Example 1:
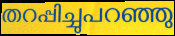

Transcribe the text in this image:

തറപ്പിച്ചുപറഞ്ഞു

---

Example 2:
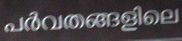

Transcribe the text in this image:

പർവതങ്ങളിലെ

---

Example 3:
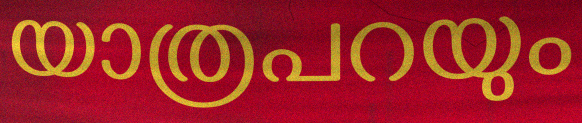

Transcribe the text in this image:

യാത്രപറയും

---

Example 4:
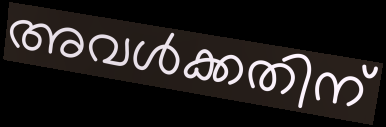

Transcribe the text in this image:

അവൾക്കതിന്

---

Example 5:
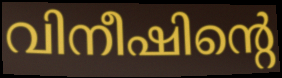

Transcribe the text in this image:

വിനീഷിന്റെ